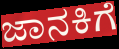
ಜಾನಕಿಗೆ